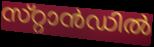
സ്‌റ്റാൻഡിൽ